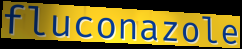
fluconazole